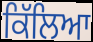
ਕਿੱਲਿਆ